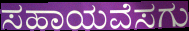
ಸಹಾಯವೆಸಗು